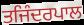
ਤਜਿੰਦਰਪਾਲ